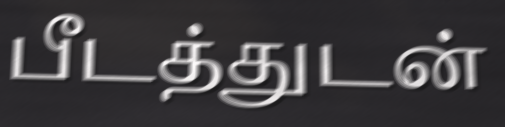
பீடத்துடன்